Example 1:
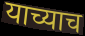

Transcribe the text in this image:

याच्याच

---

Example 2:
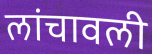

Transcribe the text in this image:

लांचावली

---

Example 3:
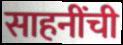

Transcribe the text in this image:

साहनींची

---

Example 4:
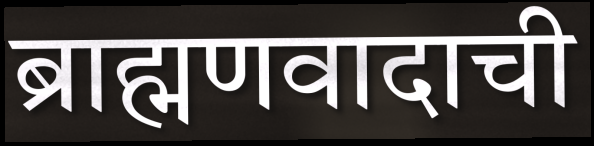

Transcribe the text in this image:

ब्राह्मणवादाची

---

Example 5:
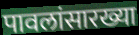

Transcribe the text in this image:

पावलांसारख्या